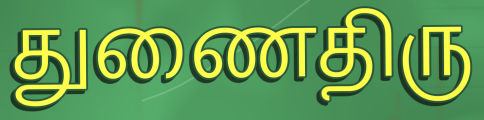
துணைதிரு